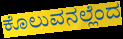
ಕೊಲುವನಲ್ಲೆಂದ